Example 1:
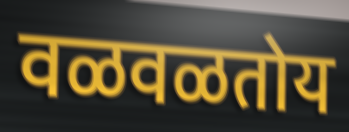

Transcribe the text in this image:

वळवळतोय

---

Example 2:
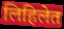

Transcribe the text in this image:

लिहिलेत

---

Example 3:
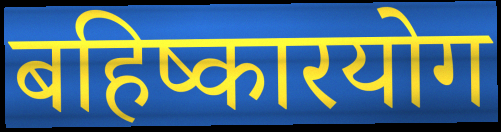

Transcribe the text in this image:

बहिष्कारयोग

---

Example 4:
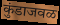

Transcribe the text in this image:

कुंडाजवळ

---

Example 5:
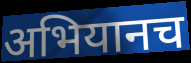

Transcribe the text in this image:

अभियानच